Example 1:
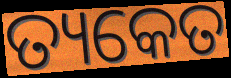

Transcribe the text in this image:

ତ୍ୟକେତ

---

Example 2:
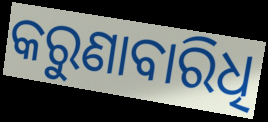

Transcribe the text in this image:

କରୁଣାବାରିଧି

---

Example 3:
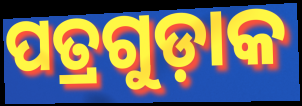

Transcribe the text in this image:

ପତ୍ରଗୁଡ଼ାକ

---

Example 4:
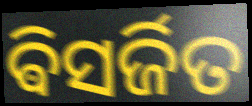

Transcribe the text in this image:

ଵିସର୍ଜିତ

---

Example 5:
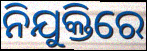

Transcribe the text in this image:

ନିଯୁକ୍ତିରେ